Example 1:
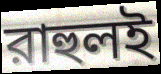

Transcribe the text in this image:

রাহুলই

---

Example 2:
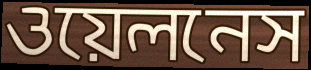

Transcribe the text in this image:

ওয়েলনেস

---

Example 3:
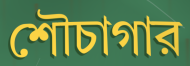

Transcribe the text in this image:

শৌচাগার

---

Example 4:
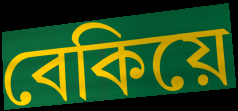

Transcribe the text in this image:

বেকিয়ে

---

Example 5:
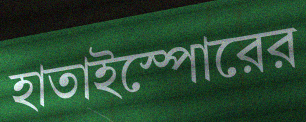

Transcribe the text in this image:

হাতাইস্পোরের